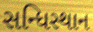
સન્ધિસ્થાન